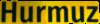
Hurmuz